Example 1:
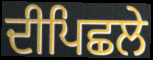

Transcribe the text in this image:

ਦੀਪਿਛਲੇ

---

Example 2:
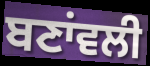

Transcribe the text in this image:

ਬਣਾਂਵਲੀ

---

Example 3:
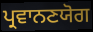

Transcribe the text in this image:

ਪ੍ਰਵਾਨਣਯੋਗ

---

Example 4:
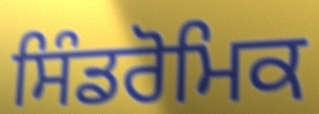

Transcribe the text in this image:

ਸਿੰਡਰੋਮਿਕ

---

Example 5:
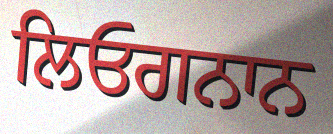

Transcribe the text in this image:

ਲਿਓਗਨਾਨ